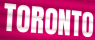
TORONTO